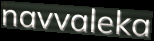
navvaleka